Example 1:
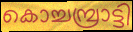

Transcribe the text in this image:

കൊച്ചമ്പ്രാട്ടി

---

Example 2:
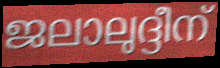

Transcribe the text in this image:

ജലാലുദ്ദീന്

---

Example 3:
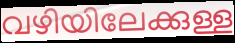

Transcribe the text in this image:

വഴിയിലേക്കുള്ള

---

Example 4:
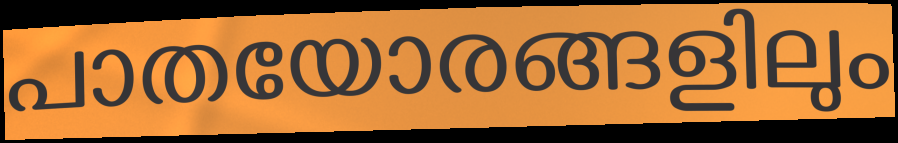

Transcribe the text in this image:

പാതയോരങ്ങളിലും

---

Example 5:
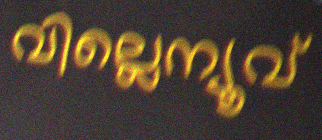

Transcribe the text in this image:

വില്ലെന്യൂവ്